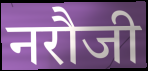
नरौजी